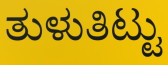
ತುಳುತಿಟ್ಟು